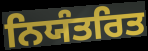
ਨਿਯੰਤਰਿਤ